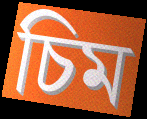
চিম